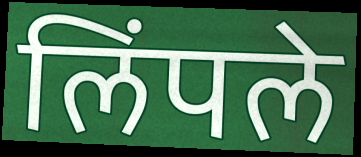
लिंपले